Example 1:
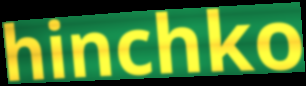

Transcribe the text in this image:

hinchko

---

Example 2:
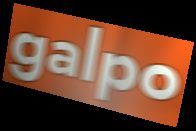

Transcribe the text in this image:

galpo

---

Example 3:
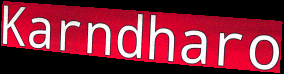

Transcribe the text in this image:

Karndharo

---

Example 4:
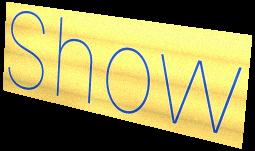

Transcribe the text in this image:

Show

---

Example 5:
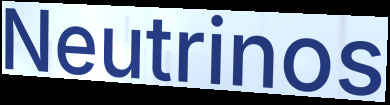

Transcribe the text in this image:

Neutrinos